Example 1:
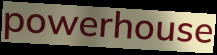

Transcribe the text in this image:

powerhouse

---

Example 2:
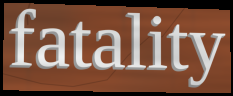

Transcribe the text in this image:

fatality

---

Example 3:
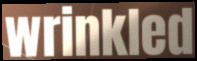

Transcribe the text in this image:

wrinkled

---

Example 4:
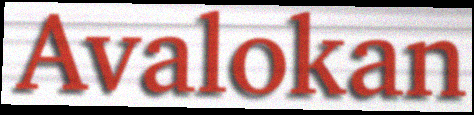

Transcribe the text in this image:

Avalokan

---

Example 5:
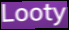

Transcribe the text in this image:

Looty